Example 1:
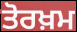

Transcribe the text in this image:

ਤੋਰਖ਼ਮ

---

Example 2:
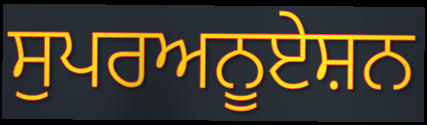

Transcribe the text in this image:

ਸੁਪਰਅਨੂਏਸ਼ਨ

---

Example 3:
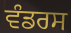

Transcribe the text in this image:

ਵੰਡਰਸ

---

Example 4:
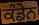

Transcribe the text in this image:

ਕੰਡੇਨ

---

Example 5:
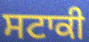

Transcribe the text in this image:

ਸਟਾਕੀ